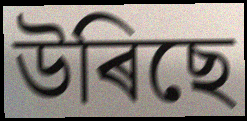
উৰিছে